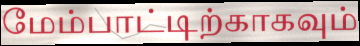
மேம்பாட்டிற்காகவும்